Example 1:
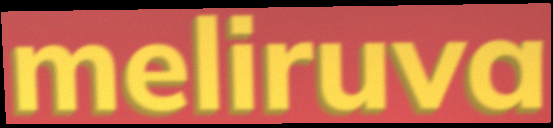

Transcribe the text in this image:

meliruva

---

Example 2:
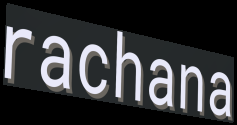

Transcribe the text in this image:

rachana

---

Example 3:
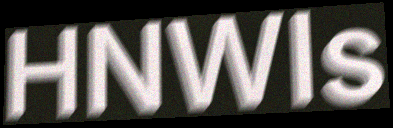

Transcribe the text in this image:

HNWIs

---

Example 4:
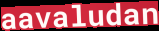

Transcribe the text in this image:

aavaludan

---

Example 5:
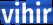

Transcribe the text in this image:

vihir